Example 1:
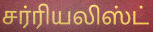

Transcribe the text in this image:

சர்ரியலிஸ்ட்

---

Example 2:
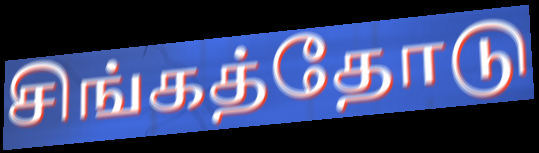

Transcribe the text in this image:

சிங்கத்தோடு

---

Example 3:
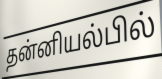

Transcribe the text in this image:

தன்னியல்பில்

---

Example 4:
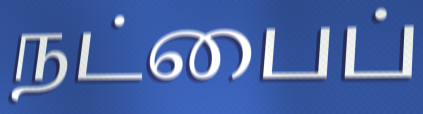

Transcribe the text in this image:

நட்பைப்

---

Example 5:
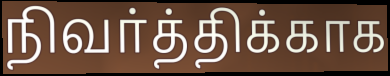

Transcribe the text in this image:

நிவர்த்திக்காக